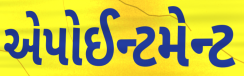
એપોઈન્ટમેન્ટ